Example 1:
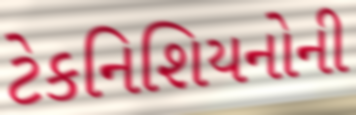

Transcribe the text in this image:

ટેકનિશિયનોની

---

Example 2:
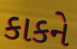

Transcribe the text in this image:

કાકને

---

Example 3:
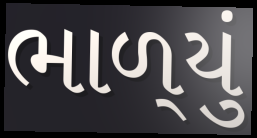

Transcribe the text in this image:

ભાળ્‌યું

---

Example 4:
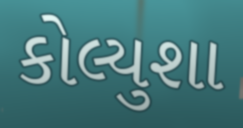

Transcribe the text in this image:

કોલ્યુશા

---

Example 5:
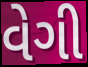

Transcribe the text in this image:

વેગી